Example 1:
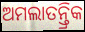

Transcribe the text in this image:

ଅମଲାତନ୍ତ୍ରିକ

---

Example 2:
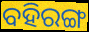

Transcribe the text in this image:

ବହିରଙ୍ଗ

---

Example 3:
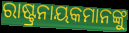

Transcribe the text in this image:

ରାଷ୍ଟ୍ରନାୟକମାନଙ୍କୁ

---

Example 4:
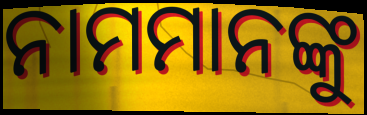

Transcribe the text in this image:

ନାମମାନଙ୍କୁ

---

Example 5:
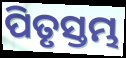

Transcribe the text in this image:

ପିତୃସ୍ତମ୍ଭ